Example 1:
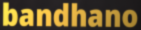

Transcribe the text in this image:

bandhano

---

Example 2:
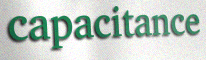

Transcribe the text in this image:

capacitance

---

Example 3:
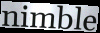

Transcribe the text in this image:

nimble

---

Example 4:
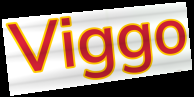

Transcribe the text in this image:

Viggo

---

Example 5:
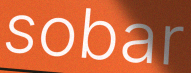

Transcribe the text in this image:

sobar